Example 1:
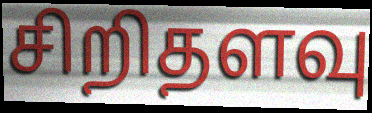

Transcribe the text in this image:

சிறிதளவு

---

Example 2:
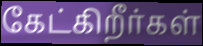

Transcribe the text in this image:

கேட்கிறீர்கள்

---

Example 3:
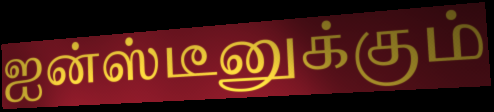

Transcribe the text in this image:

ஐன்ஸ்டீனுக்கும்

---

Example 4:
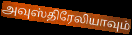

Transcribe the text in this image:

அவுஸ்திரேலியாவும்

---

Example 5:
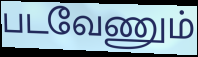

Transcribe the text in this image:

படவேணும்